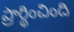
ప్రార్థించింది